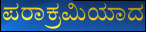
ಪರಾಕ್ರಮಿಯಾದ